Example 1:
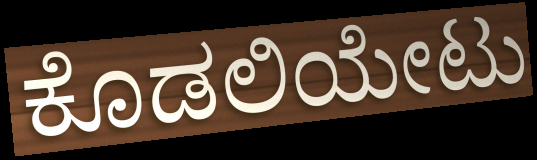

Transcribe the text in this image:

ಕೊಡಲಿಯೇಟು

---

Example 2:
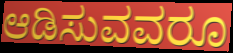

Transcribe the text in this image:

ಆಡಿಸುವವರೂ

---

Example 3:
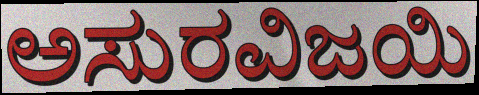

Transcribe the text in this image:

ಅಸುರವಿಜಯಿ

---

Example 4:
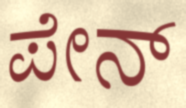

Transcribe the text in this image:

ಪೇನ್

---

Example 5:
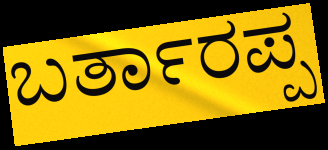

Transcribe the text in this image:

ಬರ್ತಾರಪ್ಪ